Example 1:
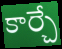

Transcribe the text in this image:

కార్చే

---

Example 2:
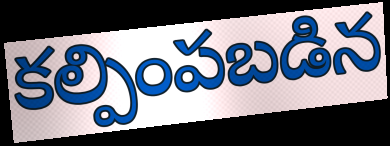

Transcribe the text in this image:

కల్పింపబడిన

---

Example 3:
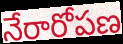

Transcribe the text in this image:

నేరారోపణ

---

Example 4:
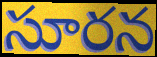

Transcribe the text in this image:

సూరన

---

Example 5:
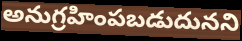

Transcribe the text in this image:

అనుగ్రహింపబడుదునని